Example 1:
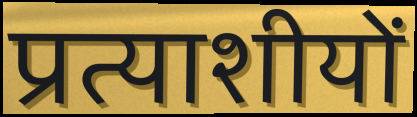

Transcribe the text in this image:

प्रत्याशीयों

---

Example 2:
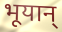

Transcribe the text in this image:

भूयान्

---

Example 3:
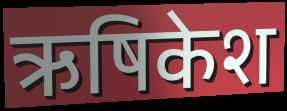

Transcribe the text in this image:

ऋषिकेश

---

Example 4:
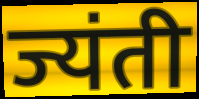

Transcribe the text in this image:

ज्यंती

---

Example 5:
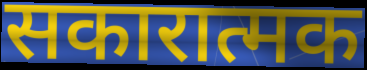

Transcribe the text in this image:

सकारात्मक